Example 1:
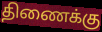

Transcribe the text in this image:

திணைக்கு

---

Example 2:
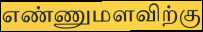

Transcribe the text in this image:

எண்ணுமளவிற்கு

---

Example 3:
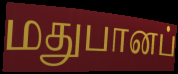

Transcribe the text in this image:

மதுபானப்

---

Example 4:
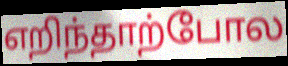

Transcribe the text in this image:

எறிந்தாற்போல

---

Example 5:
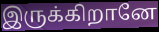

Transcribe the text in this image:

இருக்கிறானே